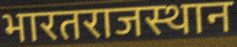
भारतराजस्थान